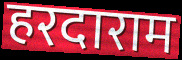
हरदाराम